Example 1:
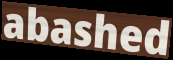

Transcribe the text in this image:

abashed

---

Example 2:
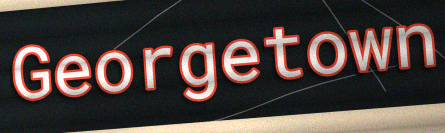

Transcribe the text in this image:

Georgetown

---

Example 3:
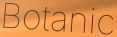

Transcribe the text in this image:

Botanic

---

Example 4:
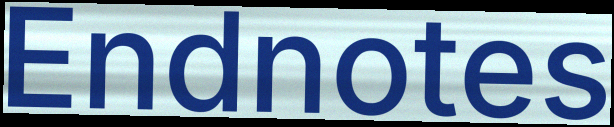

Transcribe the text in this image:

Endnotes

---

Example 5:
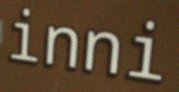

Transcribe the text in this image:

inni